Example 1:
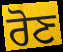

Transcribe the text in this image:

ਰੋਣ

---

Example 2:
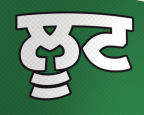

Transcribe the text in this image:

ਲੂਟ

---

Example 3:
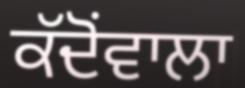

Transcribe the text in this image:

ਕੱਦੋਂਵਾਲਾ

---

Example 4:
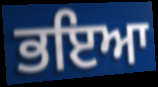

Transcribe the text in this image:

ਭਇਆ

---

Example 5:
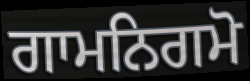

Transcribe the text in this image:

ਗਾਮਨਿਗਮੋ